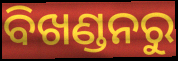
ବିଖଣ୍ଡନରୁ